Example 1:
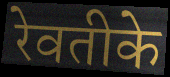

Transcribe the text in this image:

रेवतीके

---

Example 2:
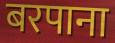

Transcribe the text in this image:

बरपाना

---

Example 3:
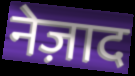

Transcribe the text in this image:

नेज़ाद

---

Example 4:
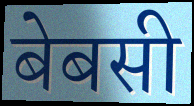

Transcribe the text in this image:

बेबसी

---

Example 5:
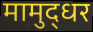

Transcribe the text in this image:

मामुद्धर